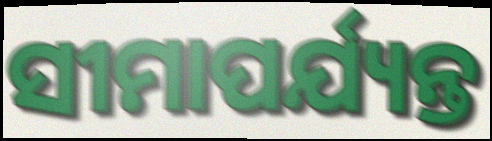
ସୀମାପର୍ଯ୍ୟନ୍ତ